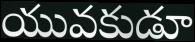
యువకుడూ